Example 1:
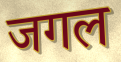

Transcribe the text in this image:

जगल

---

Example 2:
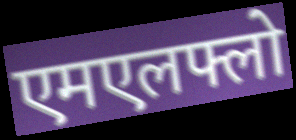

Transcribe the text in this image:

एमएलफ्लो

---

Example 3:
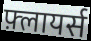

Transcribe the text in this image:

फ़्लायर्स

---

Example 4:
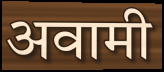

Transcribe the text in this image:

अवामी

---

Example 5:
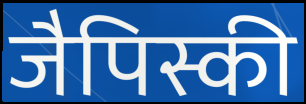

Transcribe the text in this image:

जैपिस्की